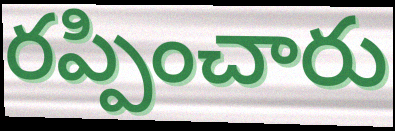
రప్పించారు